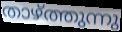
താഴ്ത്തുന്നു